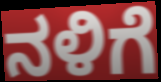
ನಳಿಗೆ